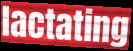
lactating